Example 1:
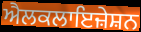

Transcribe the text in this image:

ਐਲਕਲਾਇਜ਼ੇਸ਼ਨ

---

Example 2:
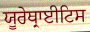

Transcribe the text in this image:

ਯੂਰੇਥ੍ਰਾਈਟਿਸ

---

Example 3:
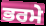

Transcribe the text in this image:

ਭਰਮੇ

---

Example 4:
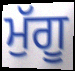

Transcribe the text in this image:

ਮੁੱਗੂ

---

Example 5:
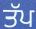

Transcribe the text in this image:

ਤੱਪ